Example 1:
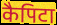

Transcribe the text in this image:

कैपिटा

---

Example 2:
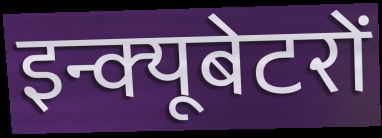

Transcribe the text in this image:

इन्क्यूबेटरों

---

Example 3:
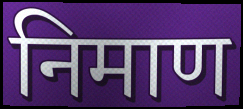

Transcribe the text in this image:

निमाण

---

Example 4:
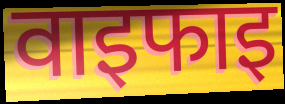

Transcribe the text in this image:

वाइफाइ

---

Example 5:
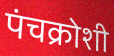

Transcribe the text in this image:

पंचक्रोशी